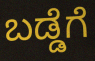
ಬಡ್ಡೆಗೆ